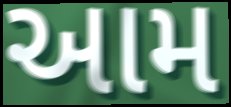
આમ